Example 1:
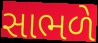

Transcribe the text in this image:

સાભળે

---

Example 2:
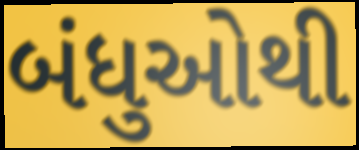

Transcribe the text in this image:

બંધુઓથી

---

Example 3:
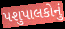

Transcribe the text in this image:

પશુપાલકોનું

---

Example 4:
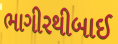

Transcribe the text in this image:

ભાગીરથીબાઈ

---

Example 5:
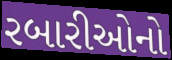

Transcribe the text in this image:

રબારીઓનો